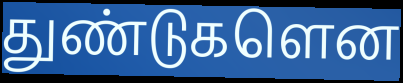
துண்டுகளென